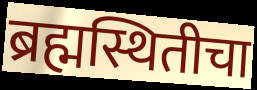
ब्रह्मस्थितीचा